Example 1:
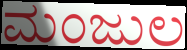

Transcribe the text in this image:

ಮಂಜುಲ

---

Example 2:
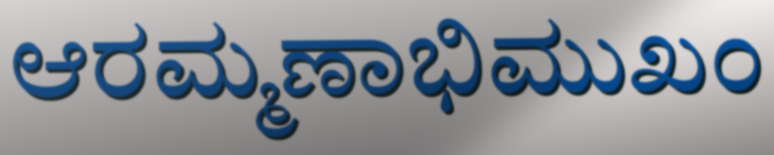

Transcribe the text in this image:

ಆರಮ್ಮಣಾಭಿಮುಖಂ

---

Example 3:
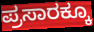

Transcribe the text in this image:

ಪ್ರಸಾರಕ್ಕೂ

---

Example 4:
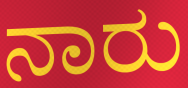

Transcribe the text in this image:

ನಾರು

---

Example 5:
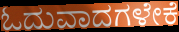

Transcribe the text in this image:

ಓದುವಾದಗಳೇಕೆ